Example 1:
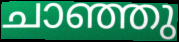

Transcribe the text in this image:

ചാഞ്ഞു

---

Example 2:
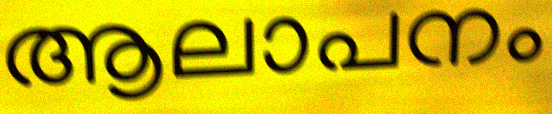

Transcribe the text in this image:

ആലാപനം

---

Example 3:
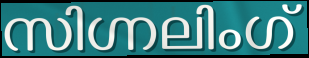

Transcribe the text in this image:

സിഗ്നലിംഗ്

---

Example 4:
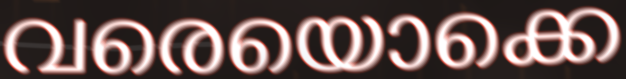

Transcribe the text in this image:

വരെയൊക്കെ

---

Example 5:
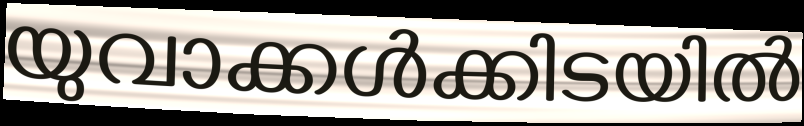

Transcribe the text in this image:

യുവാക്കൾക്കിടയിൽ